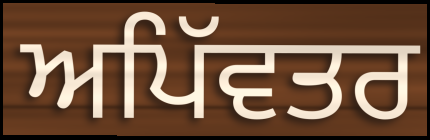
ਅਪਿੱਵਤਰ